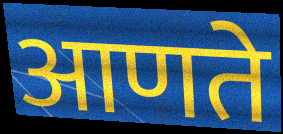
आणते